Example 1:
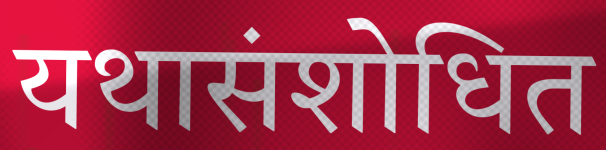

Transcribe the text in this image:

यथासंशोधित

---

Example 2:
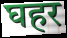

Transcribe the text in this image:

घहर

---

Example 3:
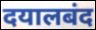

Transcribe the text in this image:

दयालबंद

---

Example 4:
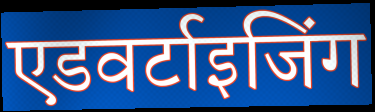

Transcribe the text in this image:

एडवर्टाइजिंग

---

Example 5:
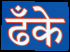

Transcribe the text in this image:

ढँके